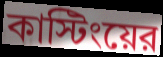
কাস্টিংয়ের